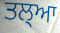
ਤਲ੍ਆ